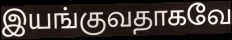
இயங்குவதாகவே